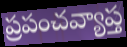
ప్రపంచవ్యాప్త